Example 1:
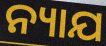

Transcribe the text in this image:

ନ୍ୟାଯ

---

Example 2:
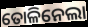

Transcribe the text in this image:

ତୋଳିନେଲା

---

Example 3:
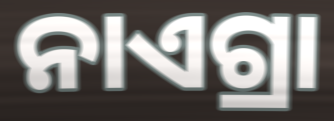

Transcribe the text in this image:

ନାଏଗ୍ରା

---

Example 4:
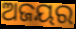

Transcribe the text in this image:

ଅଜୟର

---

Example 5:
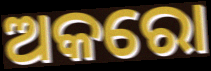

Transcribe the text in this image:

ଅକରୋ